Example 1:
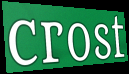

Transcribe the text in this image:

crost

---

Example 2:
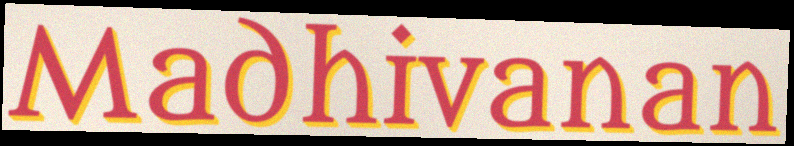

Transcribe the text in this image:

Madhivanan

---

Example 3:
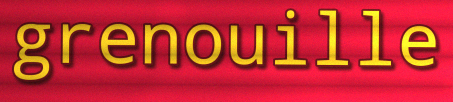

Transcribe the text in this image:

grenouille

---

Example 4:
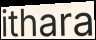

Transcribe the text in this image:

ithara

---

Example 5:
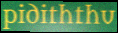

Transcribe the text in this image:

pidiththu